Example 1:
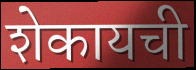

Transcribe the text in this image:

शेकायची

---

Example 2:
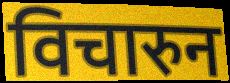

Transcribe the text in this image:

विचारुन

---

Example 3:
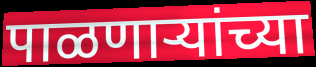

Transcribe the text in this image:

पाळणाऱ्यांच्या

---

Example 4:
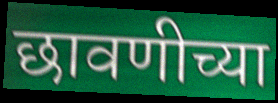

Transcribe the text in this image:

छावणीच्या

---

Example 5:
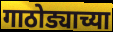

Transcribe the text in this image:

गाठोड्याच्या